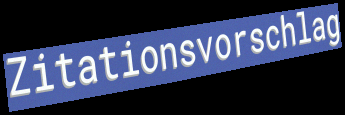
Zitationsvorschlag